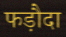
फड़ौदा